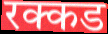
रक्कड